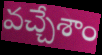
వచ్చేశాం